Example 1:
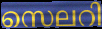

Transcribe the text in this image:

സെലറി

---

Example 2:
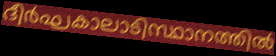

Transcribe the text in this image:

ദീർഘകാലാടിസ്ഥാനത്തിൽ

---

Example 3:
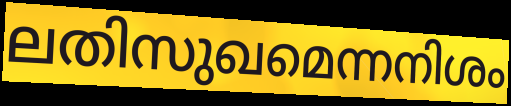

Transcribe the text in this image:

ലതിസുഖമെന്നനിശം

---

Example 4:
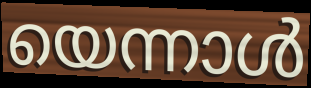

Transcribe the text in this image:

യെന്നാൾ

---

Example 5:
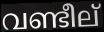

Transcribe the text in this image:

വണ്ടീല്